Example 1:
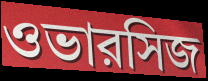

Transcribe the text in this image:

ওভারসিজ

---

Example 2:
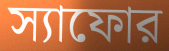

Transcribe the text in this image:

স্যাফোর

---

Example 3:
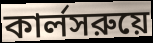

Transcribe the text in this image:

কার্লসরুয়ে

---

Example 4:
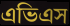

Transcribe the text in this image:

এভিএস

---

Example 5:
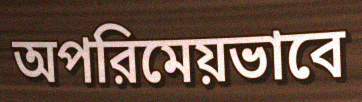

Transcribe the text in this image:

অপরিমেয়ভাবে